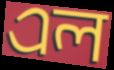
এল